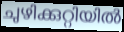
ചുഴിക്കുറ്റിയിൽ